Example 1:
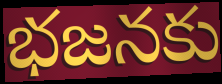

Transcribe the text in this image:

భజనకు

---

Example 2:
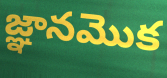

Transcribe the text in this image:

జ్ఞానమొక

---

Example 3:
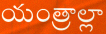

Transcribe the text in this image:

యంత్రాల్లా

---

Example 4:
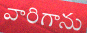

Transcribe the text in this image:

వారిగాను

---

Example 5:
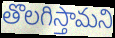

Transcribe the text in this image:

తొలగిస్తామని